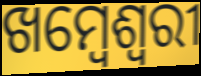
ଖମ୍ବେଶ୍ଵରୀ